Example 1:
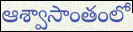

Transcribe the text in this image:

ఆశ్వాసాంతంలో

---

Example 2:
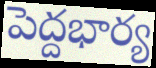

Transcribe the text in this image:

పెద్దభార్య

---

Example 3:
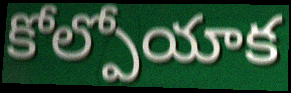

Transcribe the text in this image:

కోల్పోయాక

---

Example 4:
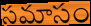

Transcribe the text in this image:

సమాసం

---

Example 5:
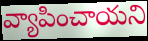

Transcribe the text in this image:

వ్యాపించాయని